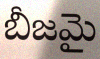
బీజమై